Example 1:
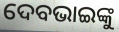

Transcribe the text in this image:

ଦେବଭାଇଙ୍କୁ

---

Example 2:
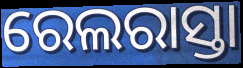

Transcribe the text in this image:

ରେଲରାସ୍ତା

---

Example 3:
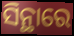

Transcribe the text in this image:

ସିନ୍ଥାରେ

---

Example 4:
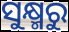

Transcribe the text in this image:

ସୁକ୍ଷ୍ମରୁ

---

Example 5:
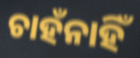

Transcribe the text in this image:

ଚାହଁନାହିଁ